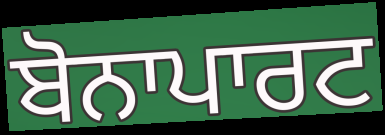
ਬੋਨਾਪਾਰਟ